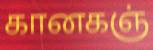
கானகஞ்